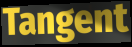
Tangent